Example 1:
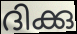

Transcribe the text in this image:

ദിക്കു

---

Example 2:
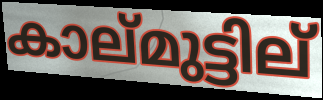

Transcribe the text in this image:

കാല്മുട്ടില്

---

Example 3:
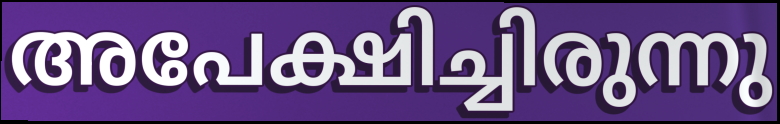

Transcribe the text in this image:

അപേക്ഷിച്ചിരുന്നു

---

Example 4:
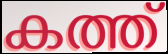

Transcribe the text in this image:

കത്ത്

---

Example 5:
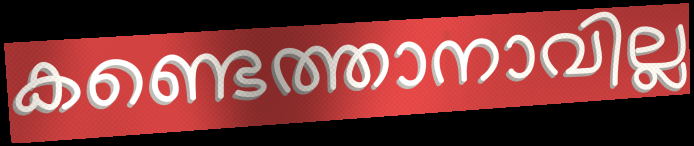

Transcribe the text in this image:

കണ്ടെത്താനാവില്ല